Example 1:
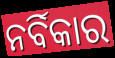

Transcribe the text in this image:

ନର୍ବିକାର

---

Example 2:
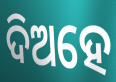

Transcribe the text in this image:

ଦିଅହେ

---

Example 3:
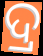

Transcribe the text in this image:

ଦ୍ର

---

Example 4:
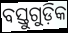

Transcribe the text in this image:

ବସ୍ତୁଗୁଡ଼ିକ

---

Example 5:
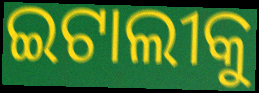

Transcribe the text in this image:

ଇଟାଲୀକୁ